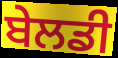
ਬੇਲਡੀ